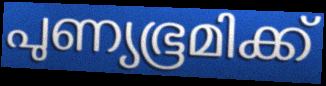
പുണ്യഭൂമിക്ക്